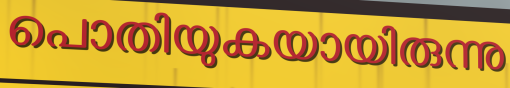
പൊതിയുകയായിരുന്നു